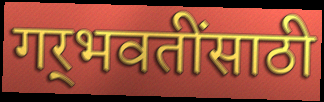
गर्भवतींसाठी